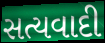
સત્યવાદી